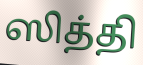
ஸித்தி